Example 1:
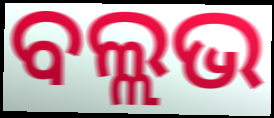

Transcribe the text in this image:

ବଲ୍ଲଭ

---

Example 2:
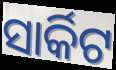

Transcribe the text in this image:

ସାର୍କିଟ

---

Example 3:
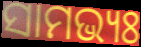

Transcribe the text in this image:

ସାମଭ୍ୟଃ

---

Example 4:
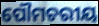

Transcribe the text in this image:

ପୌମଚରୀୟ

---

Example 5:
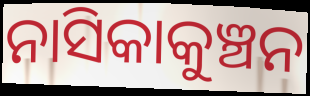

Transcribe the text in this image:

ନାସିକାକୁଞ୍ଚନ